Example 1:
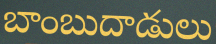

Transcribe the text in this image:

బాంబుదాడులు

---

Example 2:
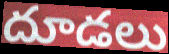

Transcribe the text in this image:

దూడలు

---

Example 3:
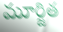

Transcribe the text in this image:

మూర్జిత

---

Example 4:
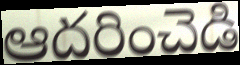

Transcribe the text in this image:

ఆదరించెడి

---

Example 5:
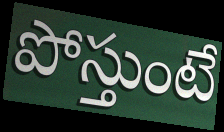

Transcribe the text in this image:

పోస్తుంటే